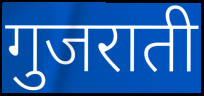
गुजराती